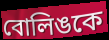
বোলিঙকে